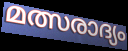
മത്സരാദ്യം